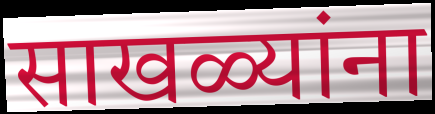
साखळ्यांना